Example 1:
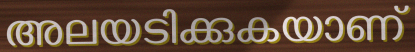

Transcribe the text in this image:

അലയടിക്കുകയാണ്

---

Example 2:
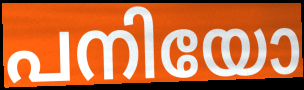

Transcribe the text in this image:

പനിയോ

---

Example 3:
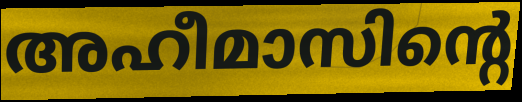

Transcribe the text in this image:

അഹീമാസിന്റെ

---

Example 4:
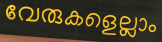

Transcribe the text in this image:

വേരുകളെല്ലാം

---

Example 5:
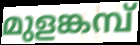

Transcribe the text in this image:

മുളങ്കമ്പ്